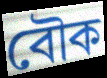
বৌক